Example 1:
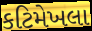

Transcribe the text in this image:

કટિમેખલા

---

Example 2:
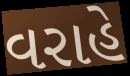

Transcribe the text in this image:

વરાહે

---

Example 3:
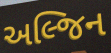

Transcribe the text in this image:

અલ્જિન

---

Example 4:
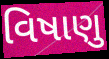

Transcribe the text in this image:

વિષાણુ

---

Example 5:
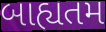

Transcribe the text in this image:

બાહ્યતમ